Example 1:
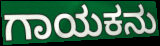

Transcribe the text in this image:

ಗಾಯಕನು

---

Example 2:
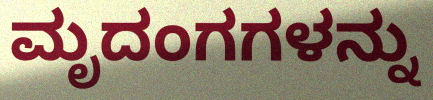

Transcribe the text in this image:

ಮೃದಂಗಗಳನ್ನು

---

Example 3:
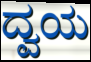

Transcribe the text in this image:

ದ್ವಯ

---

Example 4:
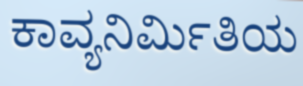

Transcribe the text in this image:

ಕಾವ್ಯನಿರ್ಮಿತಿಯ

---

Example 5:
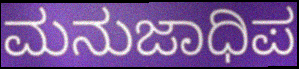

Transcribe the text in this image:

ಮನುಜಾಧಿಪ